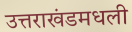
उत्तराखंडमधली